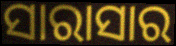
ସାରାସାର